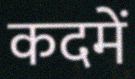
कदमें